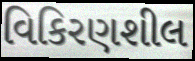
વિકિરણશીલ